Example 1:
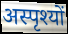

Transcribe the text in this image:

अस्पृश्यों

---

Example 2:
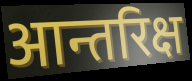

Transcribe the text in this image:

आन्तरिक्ष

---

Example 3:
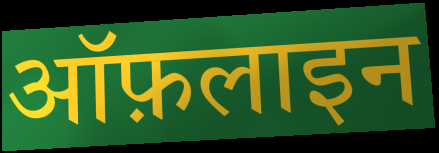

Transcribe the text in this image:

ऑफ़लाइन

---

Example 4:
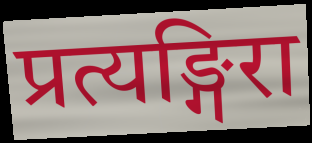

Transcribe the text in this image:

प्रत्यङ्गिरा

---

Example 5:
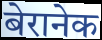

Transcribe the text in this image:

बेरानेक